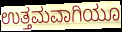
ಉತ್ತಮವಾಗಿಯೂ